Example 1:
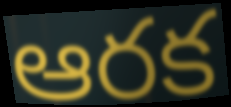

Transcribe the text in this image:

ఆరక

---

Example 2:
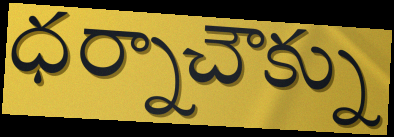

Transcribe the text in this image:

ధర్నాచౌక్ను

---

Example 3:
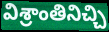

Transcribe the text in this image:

విశ్రాంతినిచ్చి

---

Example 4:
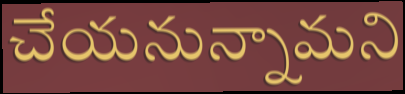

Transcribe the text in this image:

చేయనున్నామని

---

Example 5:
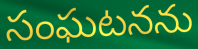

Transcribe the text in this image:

సంఘటనను